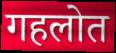
गहलोत